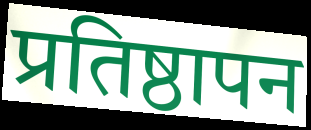
प्रतिष्ठापन